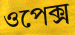
ওপেক্স